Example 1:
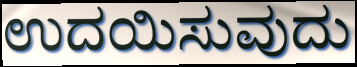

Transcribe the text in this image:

ಉದಯಿಸುವುದು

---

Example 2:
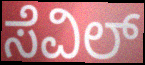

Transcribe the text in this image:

ಸೆವಿಲ್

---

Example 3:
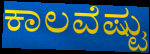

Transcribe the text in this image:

ಕಾಲವೆಷ್ಟು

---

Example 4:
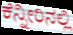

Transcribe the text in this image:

ಕೆನ್ನೀರಿನಲ್ಲಿ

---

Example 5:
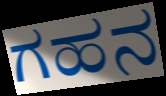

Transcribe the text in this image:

ಗಹನ